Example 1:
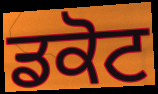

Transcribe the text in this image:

ਡਕੋਟ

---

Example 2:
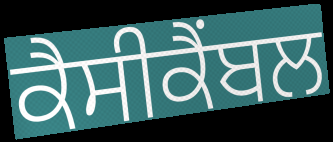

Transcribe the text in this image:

ਕੈਸੀਕੈਂਬਲ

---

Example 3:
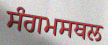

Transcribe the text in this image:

ਸੰਗਮਸਥਲ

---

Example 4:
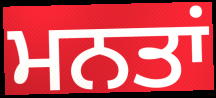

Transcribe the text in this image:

ਮਨਤਾਂ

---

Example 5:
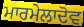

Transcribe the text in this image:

ਮਾਰਮੇਲਾਦੋਵ